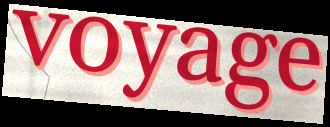
voyage